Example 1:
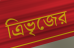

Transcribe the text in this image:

ত্রিভৃজের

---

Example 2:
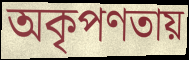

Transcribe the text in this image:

অকৃপণতায়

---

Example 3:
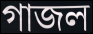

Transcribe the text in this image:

গাজল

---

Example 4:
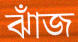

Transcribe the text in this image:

ঝাঁজ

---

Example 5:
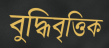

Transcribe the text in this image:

বুদ্ধিবৃত্তিক